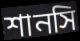
শানসি